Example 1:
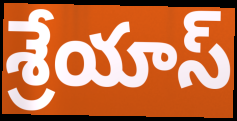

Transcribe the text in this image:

శ్రేయాస్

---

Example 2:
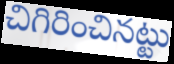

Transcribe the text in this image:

చిగిరించినట్టు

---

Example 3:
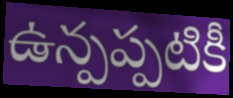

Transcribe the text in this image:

ఉన్పప్పటికీ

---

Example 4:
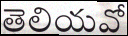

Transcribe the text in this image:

తెలియవో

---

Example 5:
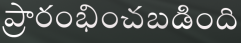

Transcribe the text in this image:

ప్రారంభించబడింది